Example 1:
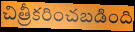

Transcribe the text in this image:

చిత్రీకరించబడింది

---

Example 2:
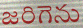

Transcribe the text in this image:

జరిగెను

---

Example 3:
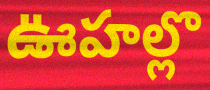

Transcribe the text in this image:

ఊహల్లొ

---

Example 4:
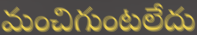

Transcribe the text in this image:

మంచిగుంటలేదు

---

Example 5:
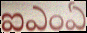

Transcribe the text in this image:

ఐఎంఏ